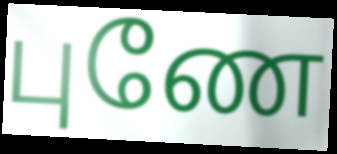
புணே